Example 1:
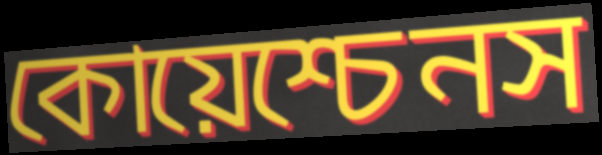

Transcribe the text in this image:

কোয়েশ্চেনস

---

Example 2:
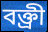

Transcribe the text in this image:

বক্ত্রী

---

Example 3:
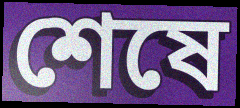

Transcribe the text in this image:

শেষে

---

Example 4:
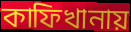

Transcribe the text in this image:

কাফিখানায়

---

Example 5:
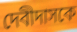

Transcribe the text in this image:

দেবীদাসকে